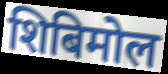
शिबिमोल